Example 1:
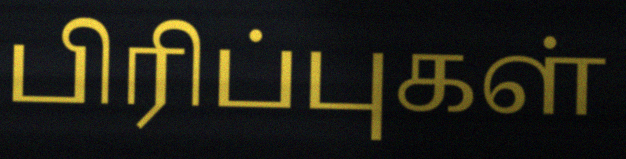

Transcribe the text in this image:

பிரிப்புகள்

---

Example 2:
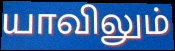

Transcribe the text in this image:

யாவிலும்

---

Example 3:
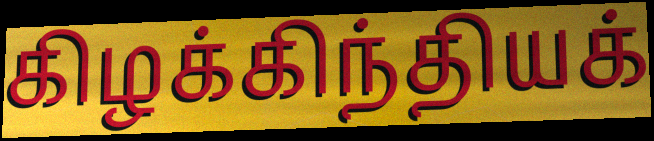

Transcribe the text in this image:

கிழக்கிந்தியக்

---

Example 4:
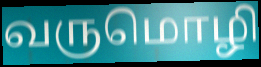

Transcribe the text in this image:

வருமொழி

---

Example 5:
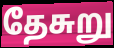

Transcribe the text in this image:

தேசுறு